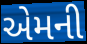
એમની